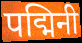
पद्मिनी